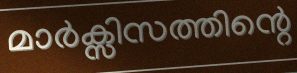
മാർക്സിസത്തിന്റെ